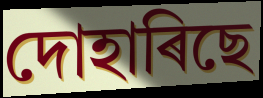
দোহাৰিছে